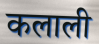
कलाली